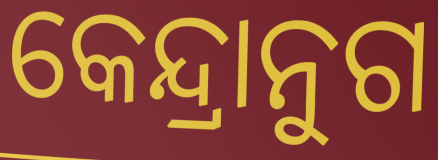
କେନ୍ଦ୍ରାନୁଗ